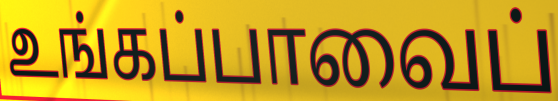
உங்கப்பாவைப்